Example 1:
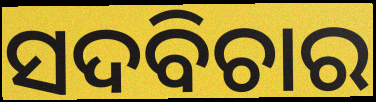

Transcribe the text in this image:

ସଦବିଚାର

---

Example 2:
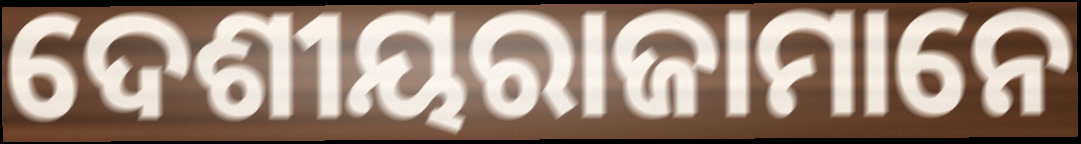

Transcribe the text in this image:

ଦେଶୀୟରାଜାମାନେ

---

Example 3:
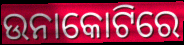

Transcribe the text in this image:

ଉନାକୋଟିରେ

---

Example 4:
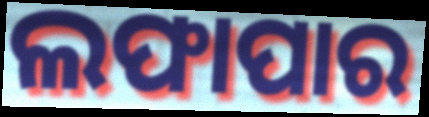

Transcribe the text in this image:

ଲଫାପାର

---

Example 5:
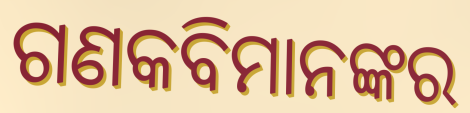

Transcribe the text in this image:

ଗଣକବିମାନଙ୍କର